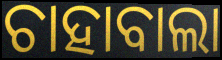
ଚାହାବାଲା